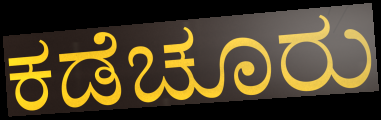
ಕಡೆಚೂರು